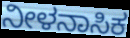
ನೀಳನಾಸಿಕ